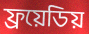
ফ্রয়েডিয়